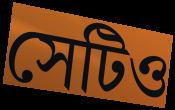
সেটিও